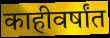
काहीवर्षांत